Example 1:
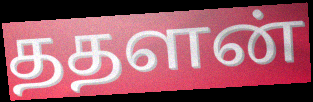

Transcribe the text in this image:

ததளன்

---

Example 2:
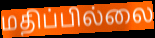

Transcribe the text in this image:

மதிப்பில்லை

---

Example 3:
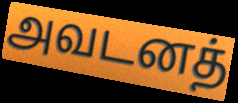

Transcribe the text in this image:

அவடனத்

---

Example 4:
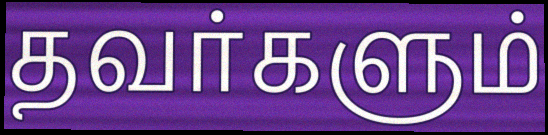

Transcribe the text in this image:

தவர்களும்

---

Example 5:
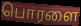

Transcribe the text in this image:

பொரளை